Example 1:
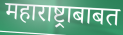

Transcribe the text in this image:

महाराष्ट्राबाबत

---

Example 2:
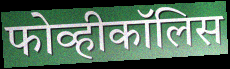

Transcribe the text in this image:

फोव्हीकॉलिस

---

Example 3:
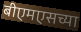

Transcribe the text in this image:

बीएमएसच्या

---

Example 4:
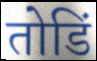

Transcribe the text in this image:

तोडिं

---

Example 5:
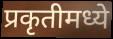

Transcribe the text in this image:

प्रकृतीमध्ये